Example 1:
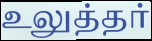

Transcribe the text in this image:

உலுத்தர்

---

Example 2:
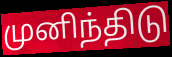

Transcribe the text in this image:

முனிந்திடு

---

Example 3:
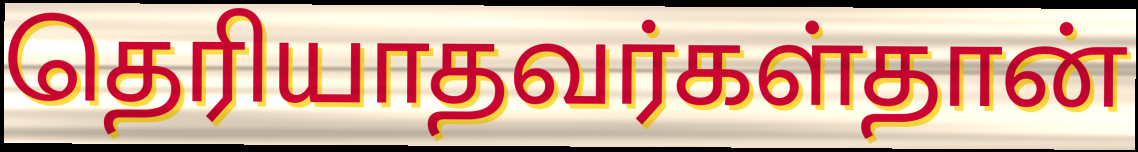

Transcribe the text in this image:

தெரியாதவர்கள்தான்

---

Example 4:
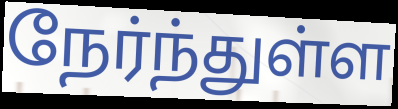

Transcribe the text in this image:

நேர்ந்துள்ள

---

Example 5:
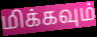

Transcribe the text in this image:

மிக்கவும்